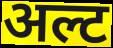
अल्ट